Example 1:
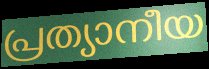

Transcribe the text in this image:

പ്രത്യാനീയ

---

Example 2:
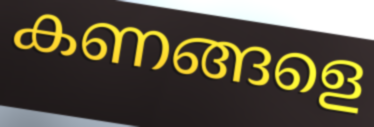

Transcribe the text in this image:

കണങ്ങളെ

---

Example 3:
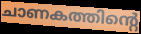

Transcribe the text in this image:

ചാണകത്തിന്റെ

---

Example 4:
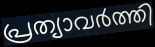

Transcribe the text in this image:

പ്രത്യാവർത്തി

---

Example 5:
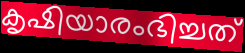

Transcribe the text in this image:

കൃഷിയാരംഭിച്ചത്